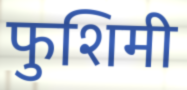
फुशिमी